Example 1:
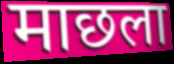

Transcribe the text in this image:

माछला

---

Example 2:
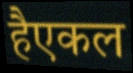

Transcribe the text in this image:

हैएकल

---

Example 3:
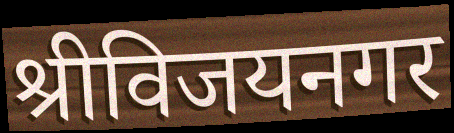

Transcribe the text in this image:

श्रीविजयनगर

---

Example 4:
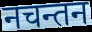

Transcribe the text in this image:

नचन्तन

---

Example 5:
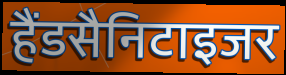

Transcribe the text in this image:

हैंडसैनिटाइजर